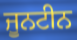
ਜੂਨਟੀਨ